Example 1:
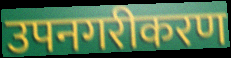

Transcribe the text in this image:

उपनगरीकरण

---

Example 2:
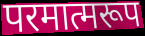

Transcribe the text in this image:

परमात्मरूप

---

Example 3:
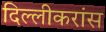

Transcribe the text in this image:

दिल्लीकरांस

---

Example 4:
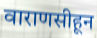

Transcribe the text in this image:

वाराणसीहून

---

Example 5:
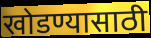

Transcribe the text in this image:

खोडण्यासाठी